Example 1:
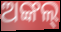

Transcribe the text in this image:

ଅଙ୍କଲ୍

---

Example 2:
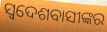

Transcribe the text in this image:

ସ୍ୱଦେଶବାସୀଙ୍କର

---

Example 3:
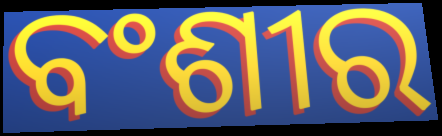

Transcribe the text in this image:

ବଂଶୀର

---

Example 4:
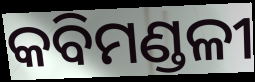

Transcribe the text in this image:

କବିମଣ୍ଡଳୀ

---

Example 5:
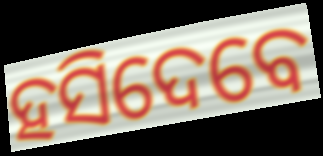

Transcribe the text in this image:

ହସିଦେବେ